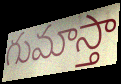
గుమాస్తా